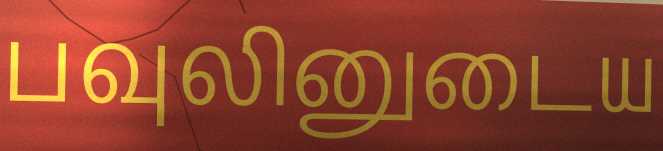
பவுலினுடைய